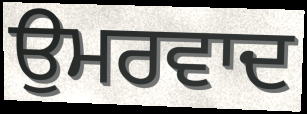
ਉਮਰਵਾਦ